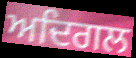
ਅਦਿਗਲ